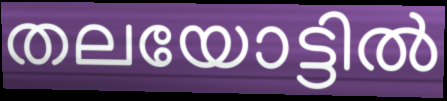
തലയോട്ടിൽ